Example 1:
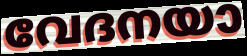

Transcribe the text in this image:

വേദനയാ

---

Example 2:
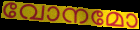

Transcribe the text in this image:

വോനമോ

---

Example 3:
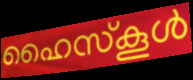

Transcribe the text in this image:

ഹൈസ്കൂൾ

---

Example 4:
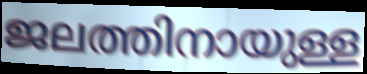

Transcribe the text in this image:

ജലത്തിനായുള്ള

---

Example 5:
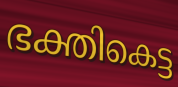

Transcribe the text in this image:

ഭക്തികെട്ട